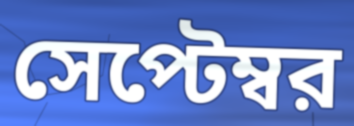
সেপ্টেম্বর